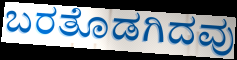
ಬರತೊಡಗಿದವು